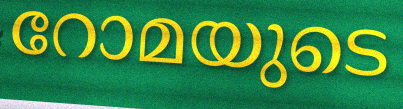
റോമയുടെ